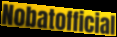
Nobatofficial